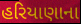
હરિયાણાના